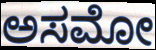
ಅಸಮೋ